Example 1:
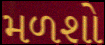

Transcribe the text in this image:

મળશો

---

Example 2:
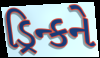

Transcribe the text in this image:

ડ્રિન્કને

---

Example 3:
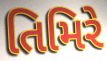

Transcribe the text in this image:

તિમિરે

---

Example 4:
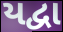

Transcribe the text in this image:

યદ્વા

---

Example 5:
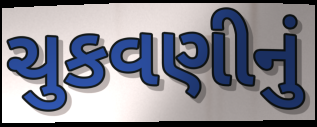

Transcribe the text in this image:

ચુકવણીનું